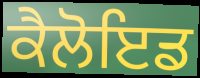
ਕੈਲੋਇਡ